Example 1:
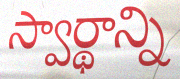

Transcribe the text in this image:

స్వార్థాన్ని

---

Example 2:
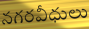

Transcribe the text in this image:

నగరవీధులు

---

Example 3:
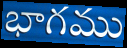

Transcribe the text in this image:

భాగము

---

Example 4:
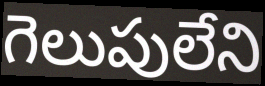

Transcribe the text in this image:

గెలుపులేని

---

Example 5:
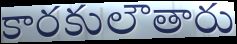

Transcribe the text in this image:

కారకులౌతారు